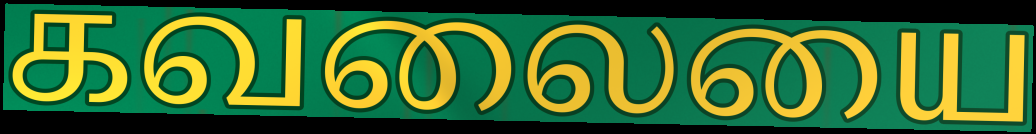
கவலையை